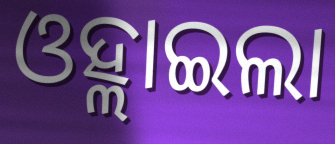
ଓହ୍ଲାଇଲା